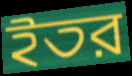
ইতর